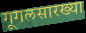
गूगलसारख्या